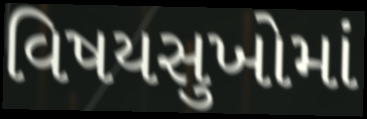
વિષયસુખોમાં